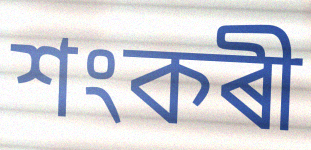
শংকৰী